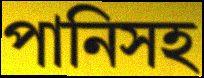
পানিসহ